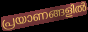
പ്രയാണങ്ങളിൽ